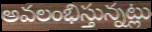
అవలంభిస్తున్నట్లు